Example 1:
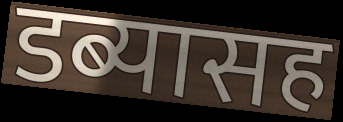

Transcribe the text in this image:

डब्यासह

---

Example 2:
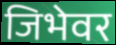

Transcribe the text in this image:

जिभेवर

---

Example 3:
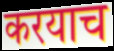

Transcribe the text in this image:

करयाच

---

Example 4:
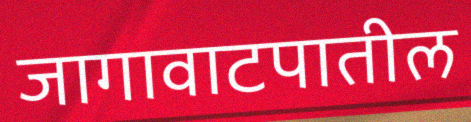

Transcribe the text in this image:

जागावाटपातील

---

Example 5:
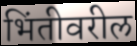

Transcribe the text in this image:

भिंतीवरील